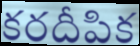
కరదీపిక